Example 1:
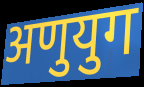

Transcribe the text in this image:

अणुयुग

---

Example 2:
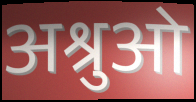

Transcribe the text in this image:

अश्रुओ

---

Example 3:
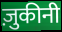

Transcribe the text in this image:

ज़ुकीनी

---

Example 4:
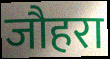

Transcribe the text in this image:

जौहरा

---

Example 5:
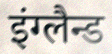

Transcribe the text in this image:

इंग्लैन्ड